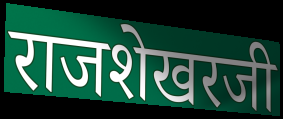
राजशेखरजी